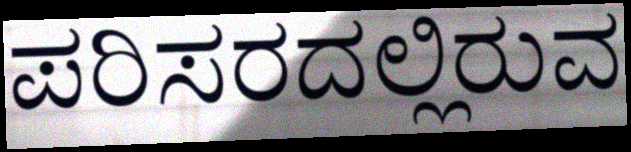
ಪರಿಸರದಲ್ಲಿರುವ